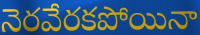
నెరవేరకపోయినా